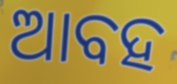
ଆବହ